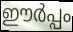
ഈർപ്പം